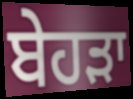
ਬੇਹੜਾ